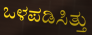
ಒಳಪಡಿಸಿತ್ತು